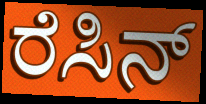
ರೆಸಿನ್